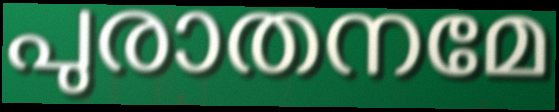
പുരാതനമേ